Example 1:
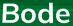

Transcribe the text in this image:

Bode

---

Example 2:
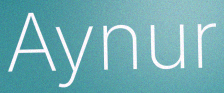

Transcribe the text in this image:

Aynur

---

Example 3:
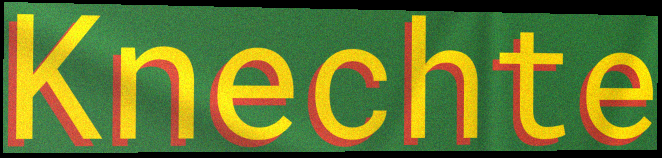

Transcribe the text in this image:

Knechte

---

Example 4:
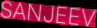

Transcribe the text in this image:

SANJEEV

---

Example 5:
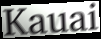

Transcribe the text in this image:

Kauai